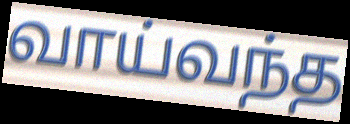
வாய்வந்த